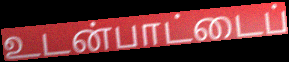
உடன்பாட்டைப்